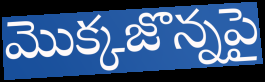
మొక్కజొన్నపై